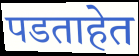
पडताहेत